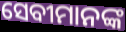
ସେବୀମାନଙ୍କ